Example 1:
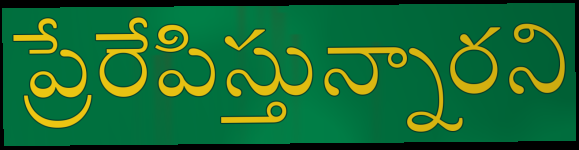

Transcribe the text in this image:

ప్రేరేపిస్తున్నారని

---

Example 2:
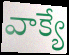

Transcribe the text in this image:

వాక్యే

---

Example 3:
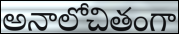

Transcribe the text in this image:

అనాలోచితంగా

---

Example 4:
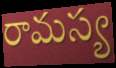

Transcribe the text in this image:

రామస్య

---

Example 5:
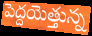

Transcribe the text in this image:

పెద్దయెత్తున్న